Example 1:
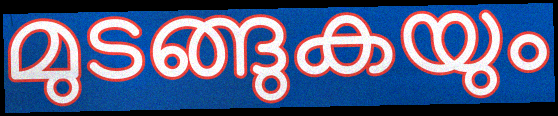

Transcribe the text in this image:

മുടങ്ങുകയും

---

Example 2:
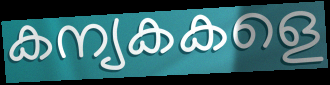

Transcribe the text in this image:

കന്യകകളെ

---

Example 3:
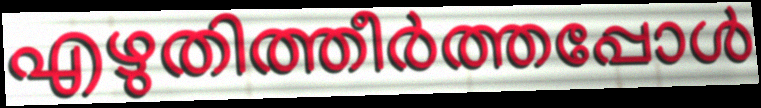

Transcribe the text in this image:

എഴുതിത്തീർത്തപ്പോൾ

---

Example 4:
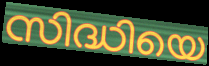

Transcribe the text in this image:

സിദ്ധിയെ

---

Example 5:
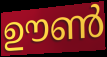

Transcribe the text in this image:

ഊൺ